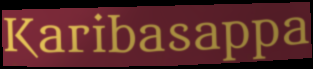
Karibasappa